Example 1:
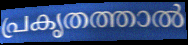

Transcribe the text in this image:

പ്രകൃതത്താൽ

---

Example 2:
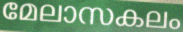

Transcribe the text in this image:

മേലാസകലം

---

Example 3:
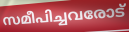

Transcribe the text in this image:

സമീപിച്ചവരോട്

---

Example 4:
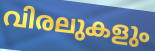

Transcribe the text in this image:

വിരലുകളും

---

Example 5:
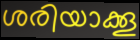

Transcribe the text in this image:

ശരിയാക്കൂ